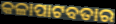
କଳାପାଟବତାର